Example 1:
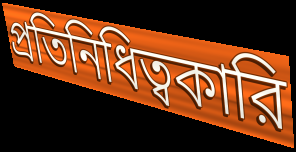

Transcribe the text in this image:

প্রতিনিধিত্বকারি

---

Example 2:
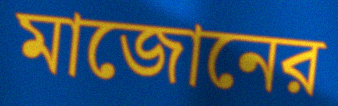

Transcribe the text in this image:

মাজোনের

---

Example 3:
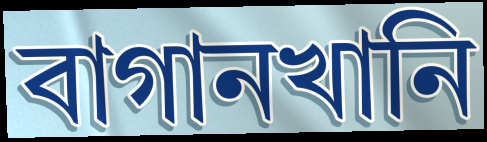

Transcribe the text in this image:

বাগানখানি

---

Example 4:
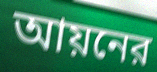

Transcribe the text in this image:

আয়নের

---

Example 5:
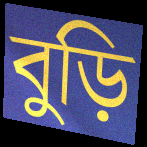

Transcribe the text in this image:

বুড়ি